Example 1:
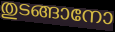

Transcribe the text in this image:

തുടങ്ങാനോ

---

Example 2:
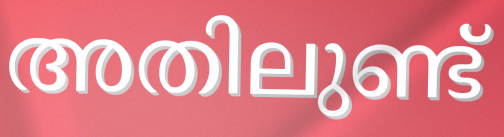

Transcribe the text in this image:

അതിലുണ്ട്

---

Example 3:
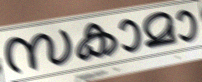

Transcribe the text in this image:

സകാമാ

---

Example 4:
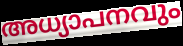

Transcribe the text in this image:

അധ്യാപനവും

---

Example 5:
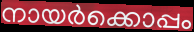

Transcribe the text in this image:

നായർക്കൊപ്പം